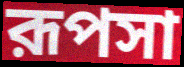
রূপসা